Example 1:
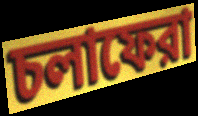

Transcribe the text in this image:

চলাফেরা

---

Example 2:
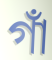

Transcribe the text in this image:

গাঁ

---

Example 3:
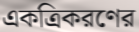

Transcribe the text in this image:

একত্রিকরণের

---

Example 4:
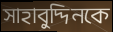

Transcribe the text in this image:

সাহাবুদ্দিনকে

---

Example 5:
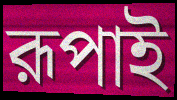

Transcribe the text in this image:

রূপাই